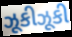
ઝૂકીઝૂકી